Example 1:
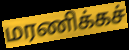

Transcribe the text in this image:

மரணிக்கச்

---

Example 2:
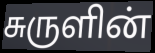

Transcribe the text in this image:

சுருளின்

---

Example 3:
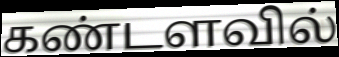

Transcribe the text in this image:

கண்டளவில்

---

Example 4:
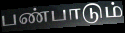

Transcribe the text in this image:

பண்பாடும்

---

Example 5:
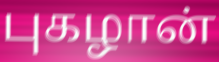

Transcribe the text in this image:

புகழான்